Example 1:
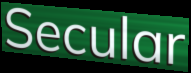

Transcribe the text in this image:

Secular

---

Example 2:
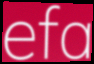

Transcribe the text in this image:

efa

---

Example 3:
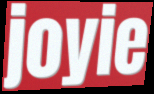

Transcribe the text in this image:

joyie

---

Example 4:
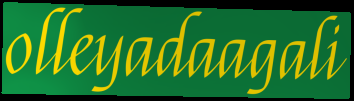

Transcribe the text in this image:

olleyadaagali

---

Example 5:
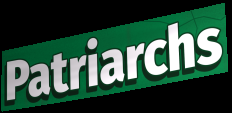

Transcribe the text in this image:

Patriarchs